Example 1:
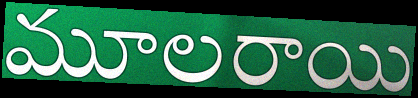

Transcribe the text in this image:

మూలరాయి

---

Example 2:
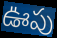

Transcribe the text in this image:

ఊపు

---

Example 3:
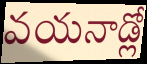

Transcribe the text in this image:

వయనాడ్లో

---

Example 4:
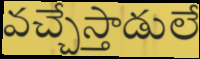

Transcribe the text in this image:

వచ్చేస్తాడులే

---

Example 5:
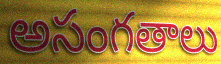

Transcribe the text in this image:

అసంగతాలు